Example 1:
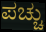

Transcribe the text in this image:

ಪಚ್ಚು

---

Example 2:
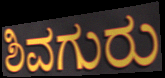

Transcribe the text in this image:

ಶಿವಗುರು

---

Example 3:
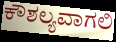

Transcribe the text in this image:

ಕೌಶಲ್ಯವಾಗಲಿ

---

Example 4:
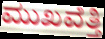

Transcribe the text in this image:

ಮುಖವೆತ್ತಿ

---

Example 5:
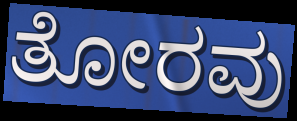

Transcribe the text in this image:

ತೋರವು